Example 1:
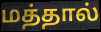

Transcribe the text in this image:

மத்தால்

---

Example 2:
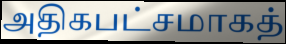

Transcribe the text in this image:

அதிகபட்சமாகத்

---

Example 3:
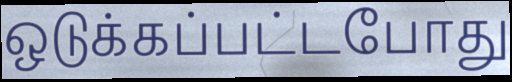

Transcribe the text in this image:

ஒடுக்கப்பட்டபோது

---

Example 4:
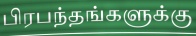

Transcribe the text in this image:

பிரபந்தங்களுக்கு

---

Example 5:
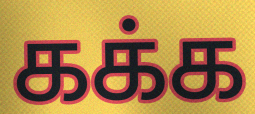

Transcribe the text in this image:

கக்க